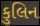
કુલિન